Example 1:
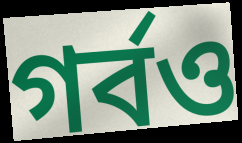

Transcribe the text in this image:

গর্বও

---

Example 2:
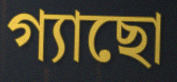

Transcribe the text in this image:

গ্যাছো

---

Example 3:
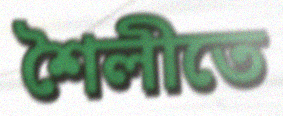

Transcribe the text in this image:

শৈলীতে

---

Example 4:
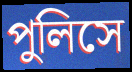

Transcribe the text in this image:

পুলিসে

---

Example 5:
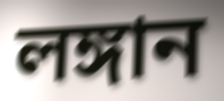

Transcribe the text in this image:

লঙ্গান